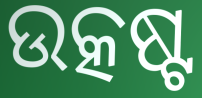
ଉତ୍କଷ୍ଟ